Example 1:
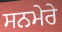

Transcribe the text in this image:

ਸਨਮੇਰੇ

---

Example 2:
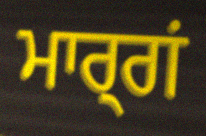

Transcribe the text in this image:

ਮਾਰ੍ਗਂ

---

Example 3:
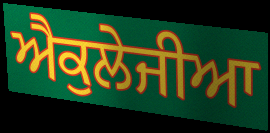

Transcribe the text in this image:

ਐਕੁਲੇਜੀਆ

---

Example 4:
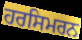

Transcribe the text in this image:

ਹਰਸਿਮਰਨ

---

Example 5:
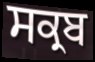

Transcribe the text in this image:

ਸਕ੍ਰਬ